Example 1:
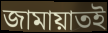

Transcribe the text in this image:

জামায়াতই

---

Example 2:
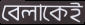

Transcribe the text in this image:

বেলাকেই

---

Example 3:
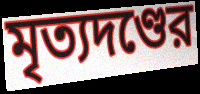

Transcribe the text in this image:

মৃত্যদণ্ডের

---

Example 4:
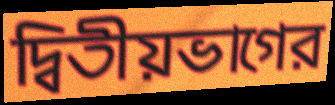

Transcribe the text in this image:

দ্বিতীয়ভাগের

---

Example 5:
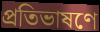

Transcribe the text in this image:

প্রতিভাষণে